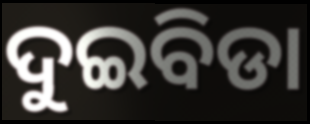
ଦୁଇବିଡା